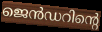
ജെൻഡറിന്റെ